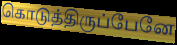
கொடுத்திருப்பேனே